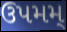
ઉપમમ્